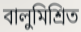
বালুমিশ্রিত